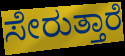
ಸೇರುತ್ತಾರೆ